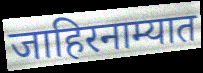
जाहिरनाम्यात